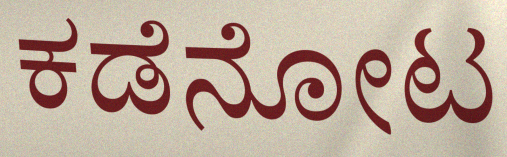
ಕಡೆನೋಟ